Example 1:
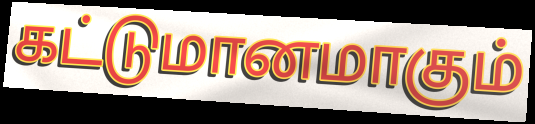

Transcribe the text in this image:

கட்டுமானமாகும்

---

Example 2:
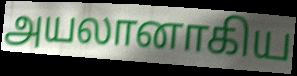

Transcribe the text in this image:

அயலானாகிய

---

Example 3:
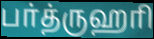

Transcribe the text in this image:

பர்த்ருஹரி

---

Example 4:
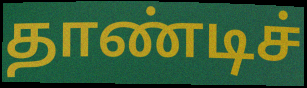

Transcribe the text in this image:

தாண்டிச்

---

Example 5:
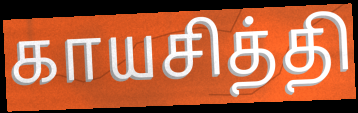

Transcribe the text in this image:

காயசித்தி